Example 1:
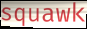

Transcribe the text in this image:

squawk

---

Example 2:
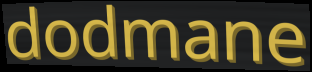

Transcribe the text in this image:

dodmane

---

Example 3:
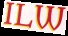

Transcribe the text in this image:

ILW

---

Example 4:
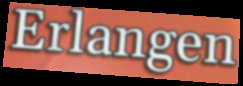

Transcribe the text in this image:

Erlangen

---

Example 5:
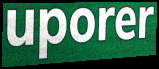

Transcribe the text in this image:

uporer